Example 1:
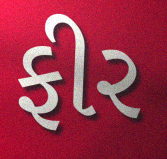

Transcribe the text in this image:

ફીર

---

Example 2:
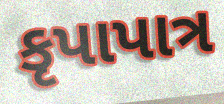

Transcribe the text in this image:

કૃપાપાત્ર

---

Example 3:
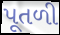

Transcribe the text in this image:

પૂતળી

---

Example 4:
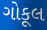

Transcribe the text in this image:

ગોકૂલ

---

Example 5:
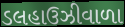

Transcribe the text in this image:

ડલહાઉઝીવાળા